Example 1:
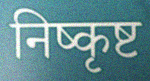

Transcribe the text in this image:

निष्कृष्ट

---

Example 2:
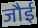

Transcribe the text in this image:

जौई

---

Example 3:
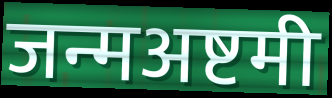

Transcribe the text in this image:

जन्मअष्टमी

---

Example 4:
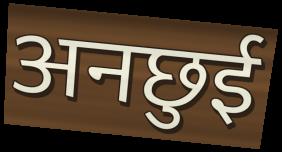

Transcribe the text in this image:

अनछुई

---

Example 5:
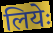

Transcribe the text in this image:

लियेः